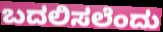
ಬದಲಿಸಲೆಂದು